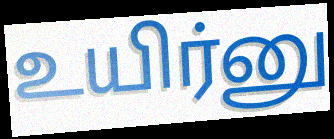
உயிர்னு